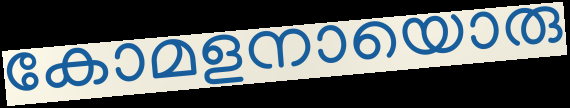
കോമളനായൊരു